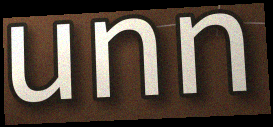
unn